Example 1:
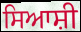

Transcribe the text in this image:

ਸਿਆਸ਼ੀ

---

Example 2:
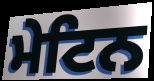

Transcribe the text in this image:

ਮੇਟਿਨ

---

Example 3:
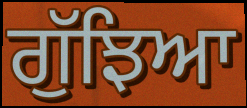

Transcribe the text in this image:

ਗੁੱਝਿਆ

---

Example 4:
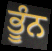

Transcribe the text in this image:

ਭੂੰਨ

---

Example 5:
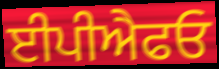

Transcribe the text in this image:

ਈਪੀਐਫਓ